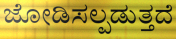
ಜೋಡಿಸಲ್ಪಡುತ್ತದೆ